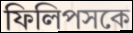
ফিলিপসকে